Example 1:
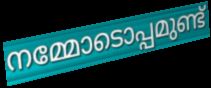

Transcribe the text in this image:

നമ്മോടൊപ്പമുണ്ട്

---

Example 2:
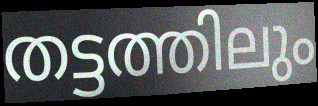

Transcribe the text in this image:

തട്ടത്തിലും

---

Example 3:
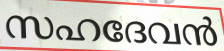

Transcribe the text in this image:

സഹദേവൻ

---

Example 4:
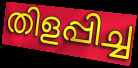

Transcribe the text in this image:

തിളപ്പിച്ച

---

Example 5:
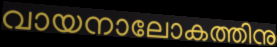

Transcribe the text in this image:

വായനാലോകത്തിനു